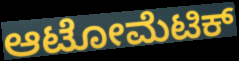
ಆಟೋಮೆಟಿಕ್